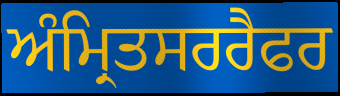
ਅੰਮ੍ਰਿਤਸਰਰੈਫਰ